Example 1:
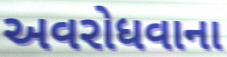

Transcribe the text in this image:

અવરોધવાના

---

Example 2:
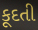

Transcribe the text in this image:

કૂદતી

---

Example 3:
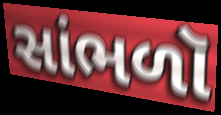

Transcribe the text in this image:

સાંભળૉ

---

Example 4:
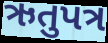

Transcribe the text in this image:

ઋતુપત્ર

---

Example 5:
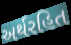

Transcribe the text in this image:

અર્થરહિત